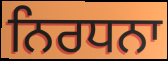
ਨਿਰਧਨਾ